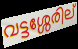
വട്ടശ്ശേരില്